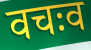
वचःव